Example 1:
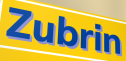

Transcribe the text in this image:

Zubrin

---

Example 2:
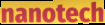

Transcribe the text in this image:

nanotech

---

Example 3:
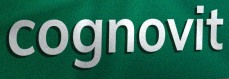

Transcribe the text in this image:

cognovit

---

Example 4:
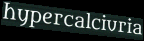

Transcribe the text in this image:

hypercalciuria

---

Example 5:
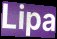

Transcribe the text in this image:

Lipa